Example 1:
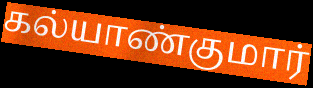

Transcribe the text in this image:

கல்யாண்குமார்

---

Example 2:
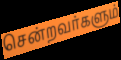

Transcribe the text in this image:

சென்றவர்களும்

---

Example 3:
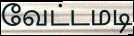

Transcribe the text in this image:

வேட்டமடி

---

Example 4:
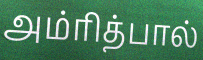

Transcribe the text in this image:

அம்ரித்பால்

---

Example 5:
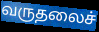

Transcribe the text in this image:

வருதலைச்